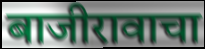
बाजीरावाचा